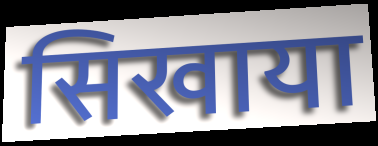
सिखाया